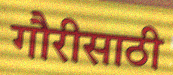
गौरीसाठी